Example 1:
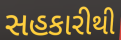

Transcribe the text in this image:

સહકારીથી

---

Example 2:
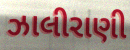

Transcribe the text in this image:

ઝાલીરાણી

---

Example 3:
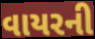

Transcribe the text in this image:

વાયરની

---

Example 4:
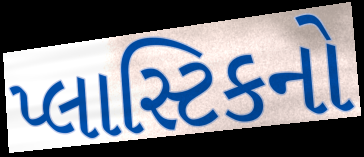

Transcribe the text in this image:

પ્લાસ્ટિકનો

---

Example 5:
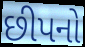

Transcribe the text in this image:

છીપનો